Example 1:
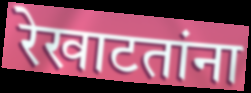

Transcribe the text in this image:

रेखाटतांना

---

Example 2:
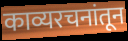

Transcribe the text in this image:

काव्यरचनांतून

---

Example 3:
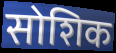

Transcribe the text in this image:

सोशिक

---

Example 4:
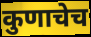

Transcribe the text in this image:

कुणाचेच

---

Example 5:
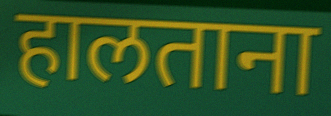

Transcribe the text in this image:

हालताना